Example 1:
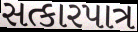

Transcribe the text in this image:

સત્કારપાત્ર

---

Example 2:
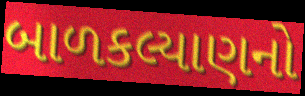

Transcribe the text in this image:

બાળકલ્યાણનો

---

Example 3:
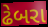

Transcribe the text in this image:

ઢેબરા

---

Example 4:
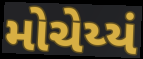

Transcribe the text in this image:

મોચેય્યં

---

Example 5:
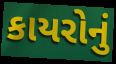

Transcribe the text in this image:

કાયરોનું